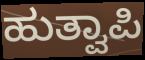
ಹುತ್ವಾಪಿ